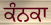
ਕੰਨਕਾ